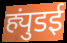
ह्युंडई